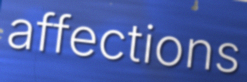
affections